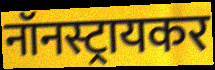
नॉनस्ट्रायकर